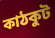
কাঠকুট